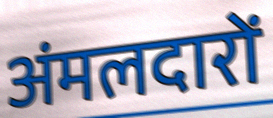
अंमलदारों